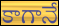
కాగానే